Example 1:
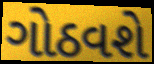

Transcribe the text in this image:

ગોઠવશે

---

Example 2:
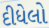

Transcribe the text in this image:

દીધેલો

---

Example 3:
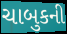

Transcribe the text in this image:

ચાબુકની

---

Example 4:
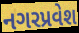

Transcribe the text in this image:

નગરપ્રવેશ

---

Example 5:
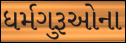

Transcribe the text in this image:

ધર્મગુરૂઓના